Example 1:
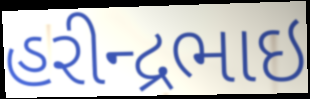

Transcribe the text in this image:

હરીન્દ્રભાઇ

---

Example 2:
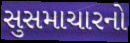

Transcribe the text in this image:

સુસમાચારનો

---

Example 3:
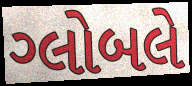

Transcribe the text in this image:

ગ્લોબલે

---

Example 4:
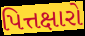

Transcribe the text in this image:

પિત્તક્ષારો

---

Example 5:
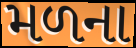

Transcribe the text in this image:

મળના